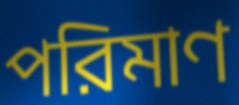
পরিমাণ